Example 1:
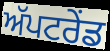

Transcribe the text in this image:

ਅੱਪਟਰੇਂਡ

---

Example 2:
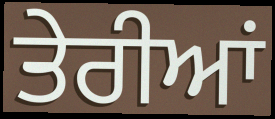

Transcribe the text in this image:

ਤੇਰੀਆਂ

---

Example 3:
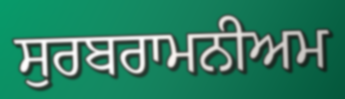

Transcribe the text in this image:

ਸੁਰਬਰਾਮਨੀਅਮ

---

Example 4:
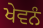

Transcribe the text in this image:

ਖੇਵਨੰ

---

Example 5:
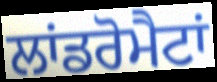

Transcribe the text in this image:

ਲਾਂਡਰੋਮੈਟਾਂ